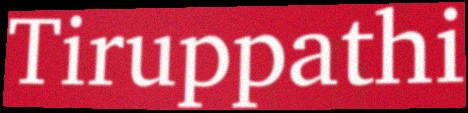
Tiruppathi